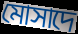
মোসাদে